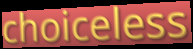
choiceless